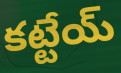
కట్టేయ్